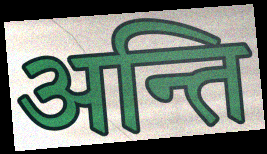
अन्ति